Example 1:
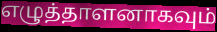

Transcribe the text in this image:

எழுத்தாளனாகவும்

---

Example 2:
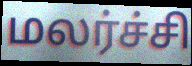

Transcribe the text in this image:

மலர்ச்சி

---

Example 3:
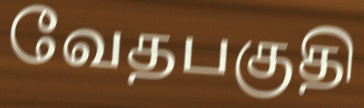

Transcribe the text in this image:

வேதபகுதி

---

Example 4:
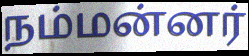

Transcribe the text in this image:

நம்மன்னர்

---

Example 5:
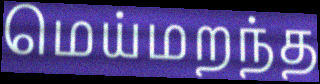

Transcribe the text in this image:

மெய்மறந்த